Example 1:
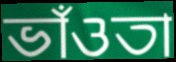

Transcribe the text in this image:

ভাঁওতা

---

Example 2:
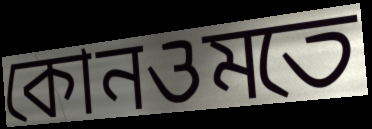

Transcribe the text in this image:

কোনওমতে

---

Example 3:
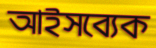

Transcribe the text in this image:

আইসব্যেক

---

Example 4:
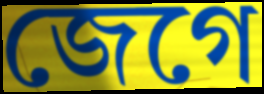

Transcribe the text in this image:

জেগে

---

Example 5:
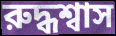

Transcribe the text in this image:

রুদ্ধশ্বাস